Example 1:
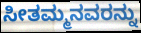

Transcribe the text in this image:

ಸೀತಮ್ಮನವರನ್ನು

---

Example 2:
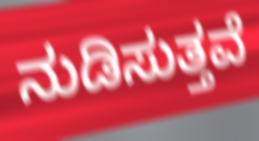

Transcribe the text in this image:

ನುಡಿಸುತ್ತವೆ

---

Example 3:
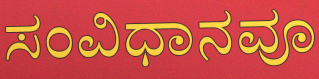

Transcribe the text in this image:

ಸಂವಿಧಾನವೂ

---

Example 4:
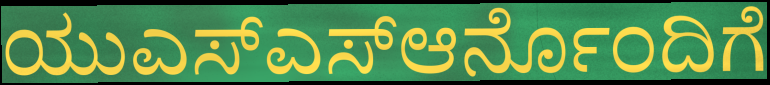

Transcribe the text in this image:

ಯುಎಸ್ಎಸ್ಆರ್ನೊಂದಿಗೆ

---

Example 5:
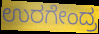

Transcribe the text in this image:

ಉರಗೇಂದ್ರ